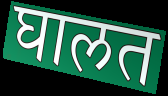
घालत